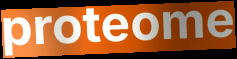
proteome